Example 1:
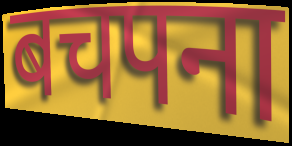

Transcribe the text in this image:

बचपना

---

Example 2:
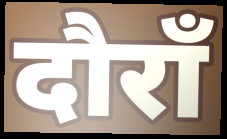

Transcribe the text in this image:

दौराँ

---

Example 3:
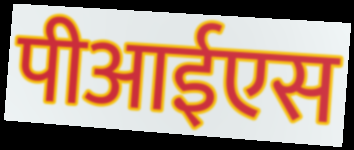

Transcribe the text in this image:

पीआईएस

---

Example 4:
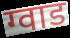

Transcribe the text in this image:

ग्वाड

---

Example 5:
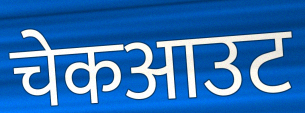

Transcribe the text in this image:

चेकआउट